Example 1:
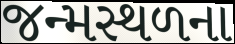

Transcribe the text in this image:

જન્મસ્થળના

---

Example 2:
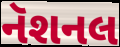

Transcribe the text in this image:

નૅશનલ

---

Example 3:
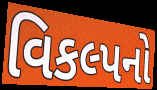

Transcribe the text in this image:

વિકલ્પનો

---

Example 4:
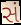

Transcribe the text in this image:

સં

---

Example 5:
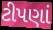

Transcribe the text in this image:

ટીપણાં